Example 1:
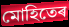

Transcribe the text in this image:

মোহিতেৰ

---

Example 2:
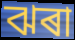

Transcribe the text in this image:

ঝৰা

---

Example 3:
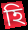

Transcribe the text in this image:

হি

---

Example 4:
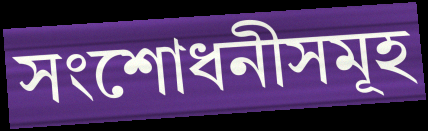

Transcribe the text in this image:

সংশোধনীসমূহ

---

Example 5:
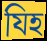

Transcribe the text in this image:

যিহ